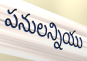
పనులన్నియు